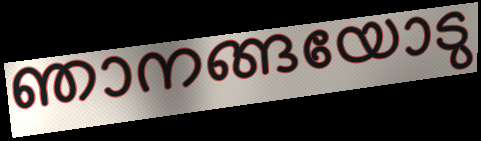
ഞാനങ്ങയോടു